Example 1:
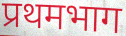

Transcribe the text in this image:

प्रथमभाग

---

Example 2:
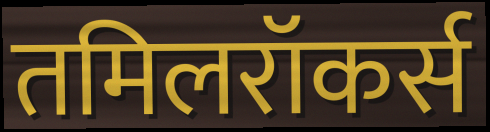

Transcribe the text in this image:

तमिलरॉकर्स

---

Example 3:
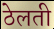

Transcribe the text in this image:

ठेलती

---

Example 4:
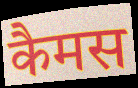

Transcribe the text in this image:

कैमस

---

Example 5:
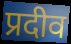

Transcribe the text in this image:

प्रदीव